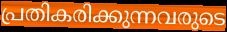
പ്രതികരിക്കുന്നവരുടെ